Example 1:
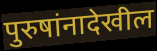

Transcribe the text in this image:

पुरुषांनादेखील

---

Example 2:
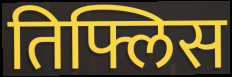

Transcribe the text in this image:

तिफ्लिस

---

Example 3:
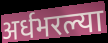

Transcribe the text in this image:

अर्धभरल्या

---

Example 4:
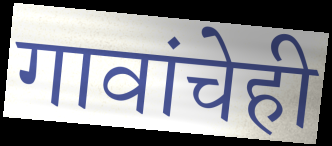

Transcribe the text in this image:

गावांचेही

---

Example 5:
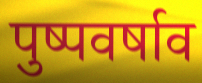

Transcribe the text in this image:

पुष्पवर्षाव